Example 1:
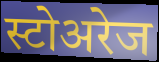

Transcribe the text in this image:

स्टोअरेज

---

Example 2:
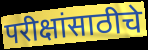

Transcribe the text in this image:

परीक्षांसाठीचे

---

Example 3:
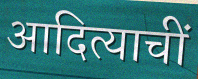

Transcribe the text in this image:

आदित्याचीं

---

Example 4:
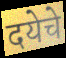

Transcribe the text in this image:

दयेचे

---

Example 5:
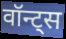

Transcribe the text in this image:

वॉन्ट्स